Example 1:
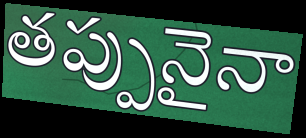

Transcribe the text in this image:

తప్పునైనా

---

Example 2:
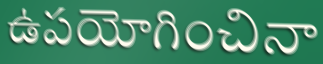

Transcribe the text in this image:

ఉపయోగించినా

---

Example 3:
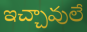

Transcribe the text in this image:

ఇచ్చావులే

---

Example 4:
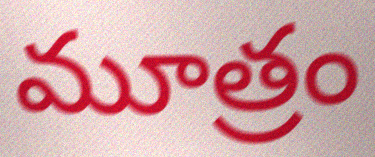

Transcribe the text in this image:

మూత్రం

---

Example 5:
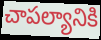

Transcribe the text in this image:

చాపల్యానికి